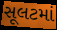
સૂલટમાં